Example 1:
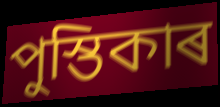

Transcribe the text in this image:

পুস্তিকাৰ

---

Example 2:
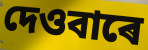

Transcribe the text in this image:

দেওবাৰে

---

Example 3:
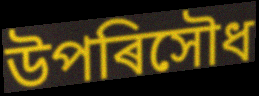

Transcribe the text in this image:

উপৰিসৌধ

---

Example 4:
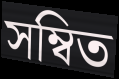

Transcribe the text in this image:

সম্বিত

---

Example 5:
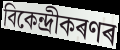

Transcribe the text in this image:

বিকেন্দ্ৰীকৰণৰ